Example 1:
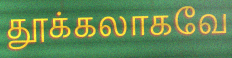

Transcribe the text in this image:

தூக்கலாகவே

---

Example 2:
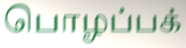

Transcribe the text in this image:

பொழப்பக்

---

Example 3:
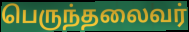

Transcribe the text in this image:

பெருந்தலைவர்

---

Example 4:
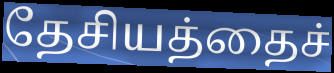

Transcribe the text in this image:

தேசியத்தைச்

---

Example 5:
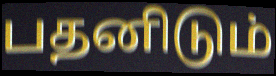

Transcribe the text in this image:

பதனிடும்